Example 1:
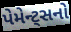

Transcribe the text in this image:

પેમેન્ટ્સનો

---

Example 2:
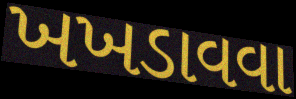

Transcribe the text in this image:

ખખડાવવા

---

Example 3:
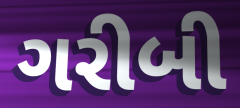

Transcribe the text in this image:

ગરીબી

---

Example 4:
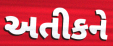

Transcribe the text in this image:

અતીકને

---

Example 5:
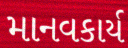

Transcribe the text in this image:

માનવકાર્ય